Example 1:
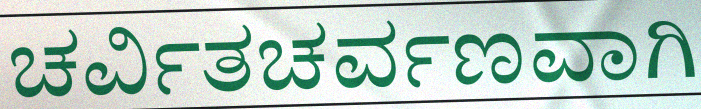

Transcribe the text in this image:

ಚರ್ವಿತಚರ್ವಣವಾಗಿ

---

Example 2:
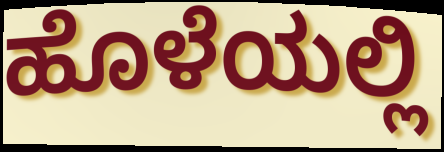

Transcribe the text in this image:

ಹೊಳೆಯಲ್ಲಿ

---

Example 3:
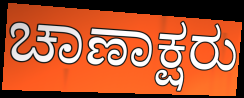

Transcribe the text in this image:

ಚಾಣಾಕ್ಷರು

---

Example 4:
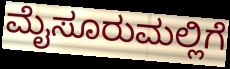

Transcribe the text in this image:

ಮೈಸೂರುಮಲ್ಲಿಗೆ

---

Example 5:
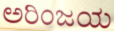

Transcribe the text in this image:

ಅರಿಂಜಯ